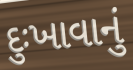
દુઃખાવાનું